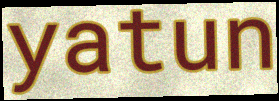
yatun